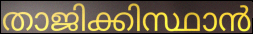
താജിക്കിസ്ഥാൻ